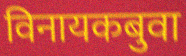
विनायकबुवा